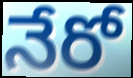
నేరో